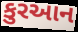
કુરઆન